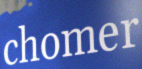
chomer